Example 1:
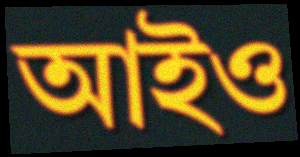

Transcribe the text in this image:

আইও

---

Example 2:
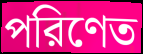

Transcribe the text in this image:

পরিণেত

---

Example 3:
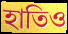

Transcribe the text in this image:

হাতিও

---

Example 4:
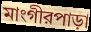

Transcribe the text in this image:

মাংগীরপাড়া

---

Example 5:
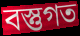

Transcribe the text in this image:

বস্তুগত